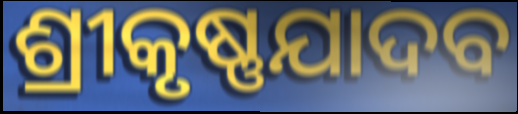
ଶ୍ରୀକୃଷ୍ଣଯାଦବ